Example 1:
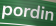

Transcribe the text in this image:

pordin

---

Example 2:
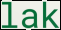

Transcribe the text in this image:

lak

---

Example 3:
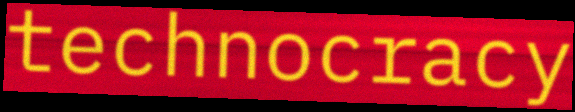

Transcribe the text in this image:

technocracy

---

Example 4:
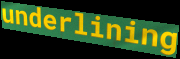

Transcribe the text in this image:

underlining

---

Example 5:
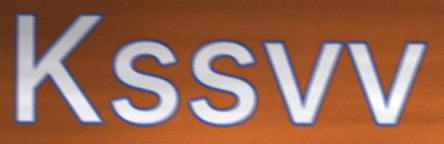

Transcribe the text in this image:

Kssvv